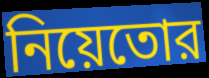
নিয়েতোর